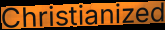
Christianized